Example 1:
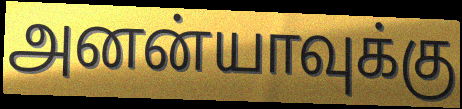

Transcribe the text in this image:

அனன்யாவுக்கு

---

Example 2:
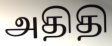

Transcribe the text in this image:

அதிதி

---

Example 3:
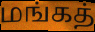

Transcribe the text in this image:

மங்கத்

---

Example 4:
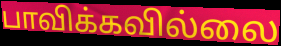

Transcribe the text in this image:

பாவிக்கவில்லை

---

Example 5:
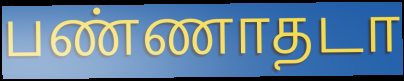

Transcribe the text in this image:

பண்ணாதடா